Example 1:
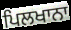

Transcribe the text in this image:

ਪਿਲਖਾਨਾ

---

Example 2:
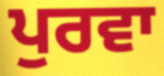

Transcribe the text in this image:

ਪੁਰਵਾ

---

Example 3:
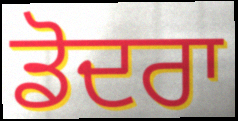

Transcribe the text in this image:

ਡੋਦਰਾ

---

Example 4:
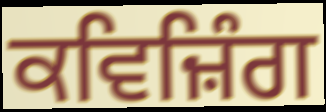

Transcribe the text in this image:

ਕਵਿਜ਼ਿੰਗ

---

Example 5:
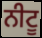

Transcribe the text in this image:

ਨੀਟੂ